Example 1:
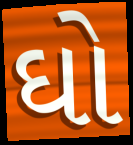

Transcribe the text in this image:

ઘો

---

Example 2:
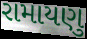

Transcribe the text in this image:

રામાયણુ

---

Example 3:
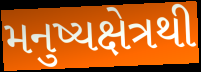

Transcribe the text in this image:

મનુષ્યક્ષેત્રથી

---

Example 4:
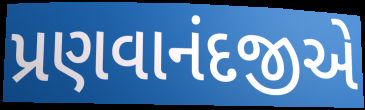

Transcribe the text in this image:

પ્રણવાનંદજીએ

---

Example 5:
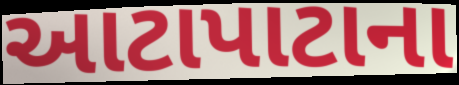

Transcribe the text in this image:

આટાપાટાના